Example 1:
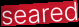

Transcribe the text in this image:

seared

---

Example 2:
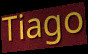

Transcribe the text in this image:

Tiago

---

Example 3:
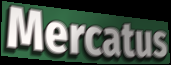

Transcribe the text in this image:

Mercatus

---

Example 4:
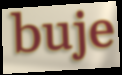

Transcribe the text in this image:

buje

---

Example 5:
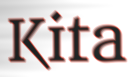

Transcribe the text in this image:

Kita